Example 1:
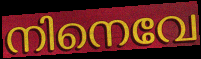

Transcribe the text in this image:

നിനെവേ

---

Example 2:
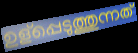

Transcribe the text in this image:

ഉള്പ്പെടുത്തുന്നത്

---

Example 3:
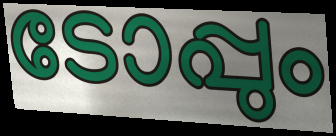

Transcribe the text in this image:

ടോപ്പും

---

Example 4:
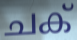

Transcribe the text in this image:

ചക്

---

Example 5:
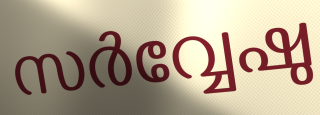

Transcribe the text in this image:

സർവ്വേഷു